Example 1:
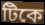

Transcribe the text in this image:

টিকে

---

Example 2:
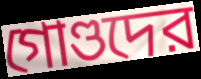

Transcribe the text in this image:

গোণ্ডদের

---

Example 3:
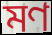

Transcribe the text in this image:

মণ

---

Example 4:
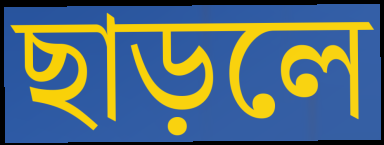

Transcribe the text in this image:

ছাড়লে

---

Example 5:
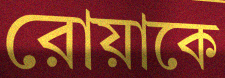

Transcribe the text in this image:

রোয়াকে